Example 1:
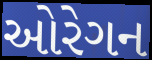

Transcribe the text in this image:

ઓરેગન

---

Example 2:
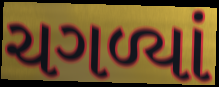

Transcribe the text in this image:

ચગળ્યાં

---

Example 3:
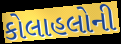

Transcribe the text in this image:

કોલાહલોની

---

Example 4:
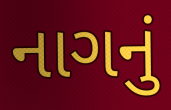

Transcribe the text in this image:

નાગનું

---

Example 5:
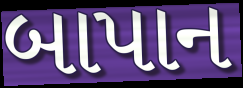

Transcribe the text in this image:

બાપાન